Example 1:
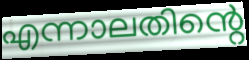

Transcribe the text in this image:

എന്നാലതിന്റെ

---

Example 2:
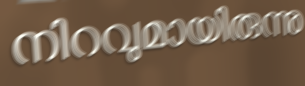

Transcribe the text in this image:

നിറവുമായിരുന്നു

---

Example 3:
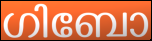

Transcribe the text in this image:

ഗിബോ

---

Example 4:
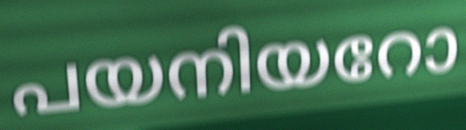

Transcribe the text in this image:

പയനിയറോ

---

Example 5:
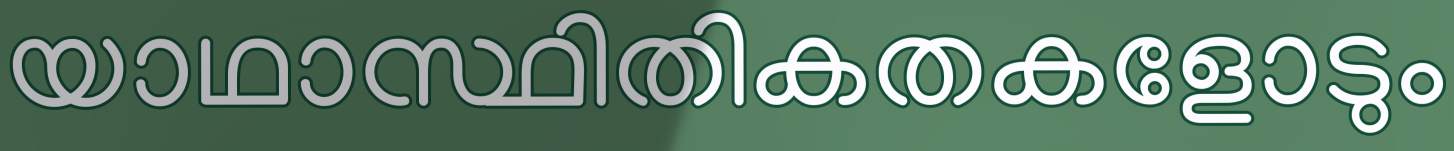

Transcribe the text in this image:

യാഥാസ്ഥിതികതകളോടും